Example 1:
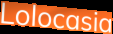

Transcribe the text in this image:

Lolocasia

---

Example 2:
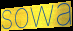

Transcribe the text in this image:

sowa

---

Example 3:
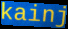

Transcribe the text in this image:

kainj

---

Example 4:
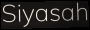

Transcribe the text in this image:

Siyasah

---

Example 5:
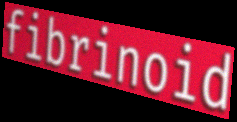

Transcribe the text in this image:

fibrinoid